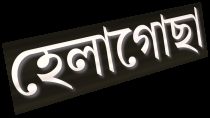
হেলাগোছা